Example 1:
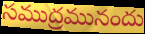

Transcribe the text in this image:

సముద్రమునందు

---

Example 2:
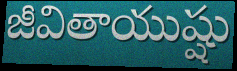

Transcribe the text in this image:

జీవితాయుష్షు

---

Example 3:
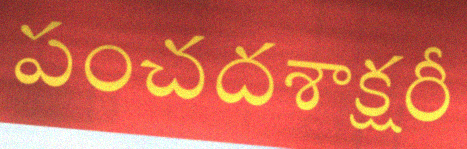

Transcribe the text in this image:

పంచదశాక్షరీ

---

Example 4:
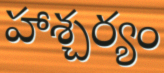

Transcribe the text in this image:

హాశ్చర్యం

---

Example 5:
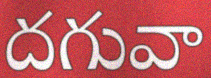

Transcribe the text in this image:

దగువా